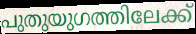
പുതുയുഗത്തിലേക്ക്